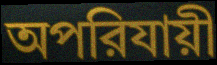
অপরিযায়ী